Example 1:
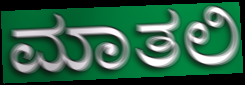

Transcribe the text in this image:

ಮಾತಲಿ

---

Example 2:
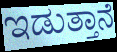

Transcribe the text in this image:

ಇಡುತ್ತಾನೆ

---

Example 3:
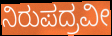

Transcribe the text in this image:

ನಿರುಪದ್ರವೀ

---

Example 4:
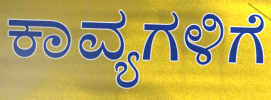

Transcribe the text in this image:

ಕಾವ್ಯಗಳಿಗೆ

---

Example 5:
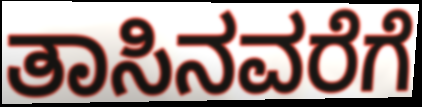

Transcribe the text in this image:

ತಾಸಿನವರೆಗೆ